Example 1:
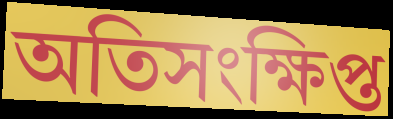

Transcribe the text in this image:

অতিসংক্ষিপ্ত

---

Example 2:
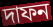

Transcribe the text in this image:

দাফন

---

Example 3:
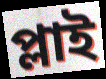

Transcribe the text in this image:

প্লাই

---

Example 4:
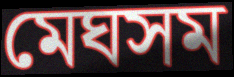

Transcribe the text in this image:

মেঘসম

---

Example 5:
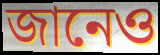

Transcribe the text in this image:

জানেও